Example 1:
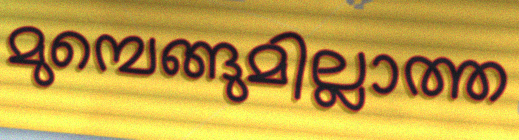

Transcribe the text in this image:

മുമ്പെങ്ങുമില്ലാത്ത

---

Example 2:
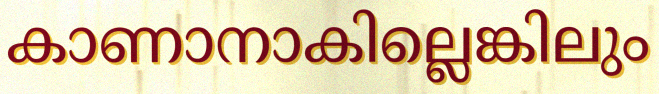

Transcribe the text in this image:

കാണാനാകില്ലെങ്കിലും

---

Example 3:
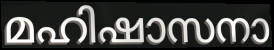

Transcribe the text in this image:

മഹിഷാസനാ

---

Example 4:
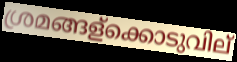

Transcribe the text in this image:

ശ്രമങ്ങള്ക്കൊടുവില്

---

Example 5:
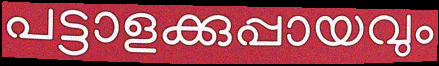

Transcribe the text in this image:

പട്ടാളക്കുപ്പായവും